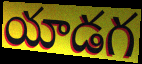
యాడగ